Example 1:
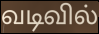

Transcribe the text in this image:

வடிவில்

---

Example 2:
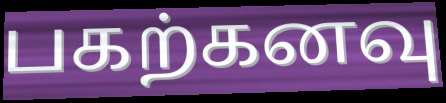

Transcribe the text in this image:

பகற்கனவு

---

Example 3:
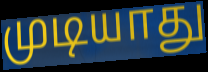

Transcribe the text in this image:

முடியாது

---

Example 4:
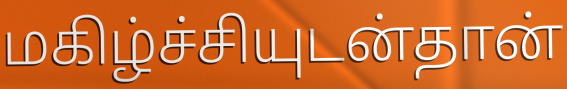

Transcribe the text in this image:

மகிழ்ச்சியுடன்தான்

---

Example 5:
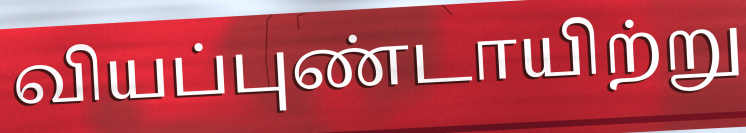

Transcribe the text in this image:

வியப்புண்டாயிற்று